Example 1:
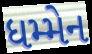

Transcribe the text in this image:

ધમ્મેન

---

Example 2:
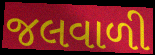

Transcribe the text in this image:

જલવાળી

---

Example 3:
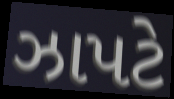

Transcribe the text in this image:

ઝાપટે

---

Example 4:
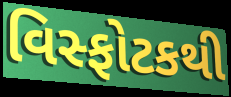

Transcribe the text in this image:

વિસ્ફોટકથી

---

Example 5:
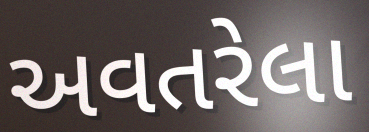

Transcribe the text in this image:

અવતરેલા